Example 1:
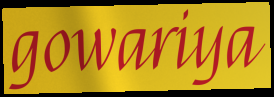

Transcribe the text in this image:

gowariya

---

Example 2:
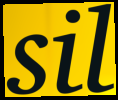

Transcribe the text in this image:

sil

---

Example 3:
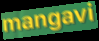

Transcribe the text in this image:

mangavi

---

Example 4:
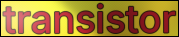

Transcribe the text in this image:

transistor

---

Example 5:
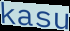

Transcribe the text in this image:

kasu